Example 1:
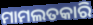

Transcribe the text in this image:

ମାମଲତକାରି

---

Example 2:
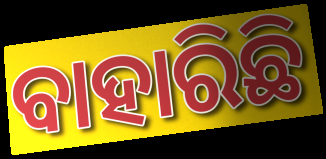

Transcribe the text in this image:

ବାହାରିଛି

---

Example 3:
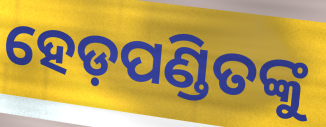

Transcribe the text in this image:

ହେଡ଼ପଣ୍ଡିତଙ୍କୁ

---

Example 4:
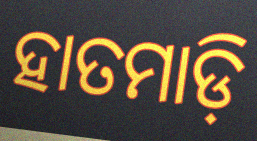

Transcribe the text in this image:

ହାତମାଡ଼ି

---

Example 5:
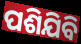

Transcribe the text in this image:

ପଶିଯିବି